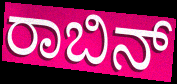
ರಾಬಿನ್